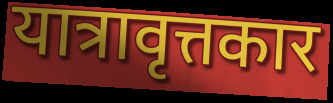
यात्रावृत्तकार